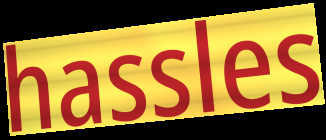
hassles